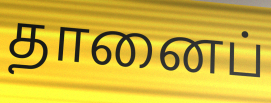
தானைப்